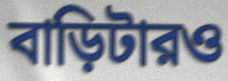
বাড়িটারও